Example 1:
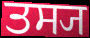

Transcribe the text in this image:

ਤਸ੍ਯ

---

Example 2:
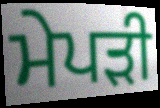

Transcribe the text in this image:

ਮੇਪੜੀ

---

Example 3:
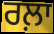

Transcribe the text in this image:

ਰਲ਼ਾ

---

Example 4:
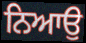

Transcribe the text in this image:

ਨਿਆਉ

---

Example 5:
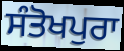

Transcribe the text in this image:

ਸੰਤੋਖਪੁਰਾ